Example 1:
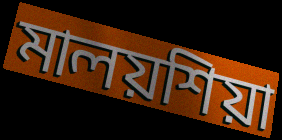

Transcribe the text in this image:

মালয়শিয়া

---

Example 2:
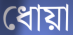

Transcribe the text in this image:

ধোয়া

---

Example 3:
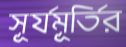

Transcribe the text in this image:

সূর্যমূর্তির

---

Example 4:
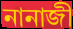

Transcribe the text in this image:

নানাজী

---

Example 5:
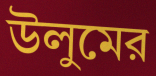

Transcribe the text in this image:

উলুমের